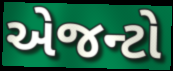
એજન્ટો